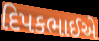
દિપકભાઈએ